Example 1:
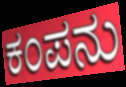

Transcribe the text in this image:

ಕಂಪನು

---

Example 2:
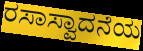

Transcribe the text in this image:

ರಸಾಸ್ವಾದನೆಯ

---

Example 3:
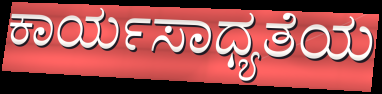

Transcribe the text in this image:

ಕಾರ್ಯಸಾಧ್ಯತೆಯ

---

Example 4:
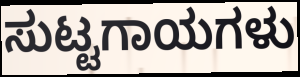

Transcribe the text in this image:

ಸುಟ್ಟಗಾಯಗಳು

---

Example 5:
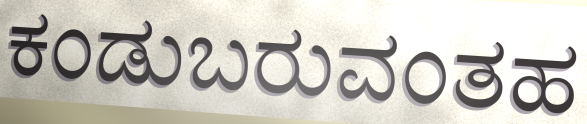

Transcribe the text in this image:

ಕಂಡುಬರುವಂತಹ